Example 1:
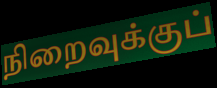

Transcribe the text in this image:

நிறைவுக்குப்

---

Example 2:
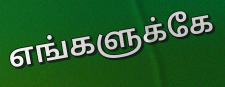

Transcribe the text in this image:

எங்களுக்கே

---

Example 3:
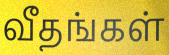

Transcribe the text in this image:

வீதங்கள்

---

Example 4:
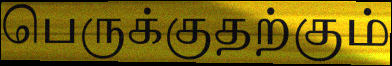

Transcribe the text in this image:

பெருக்குதற்கும்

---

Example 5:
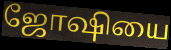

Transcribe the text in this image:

ஜோஷியை